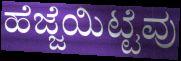
ಹೆಜ್ಜೆಯಿಟ್ಟೆವು